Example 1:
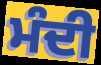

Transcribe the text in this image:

ਮੰਦੀ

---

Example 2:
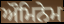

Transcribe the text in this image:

ਔਮਿਨੇਮ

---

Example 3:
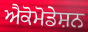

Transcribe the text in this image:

ਐਕੋਮੋਡੇਸ਼ਨ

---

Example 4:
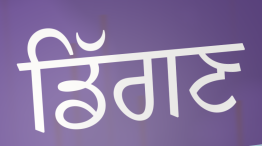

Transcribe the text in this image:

ਡਿੱਗਣ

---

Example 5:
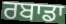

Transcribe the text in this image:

ਰਬਾਡਾ